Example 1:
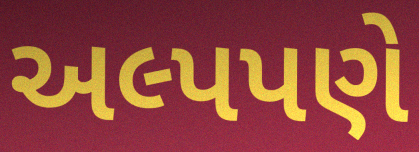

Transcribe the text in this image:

અલ્પપણે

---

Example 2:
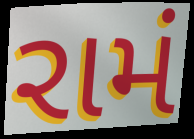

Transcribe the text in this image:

રામં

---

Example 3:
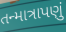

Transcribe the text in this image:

તન્માત્રાપણું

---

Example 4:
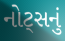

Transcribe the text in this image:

નોટ્સનું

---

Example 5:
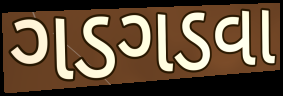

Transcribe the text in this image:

ગડગડવા